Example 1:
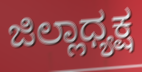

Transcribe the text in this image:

ಜಿಲ್ಲಾಧ್ಯಕ್ಷ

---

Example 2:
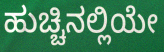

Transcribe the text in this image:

ಹುಚ್ಚಿನಲ್ಲಿಯೇ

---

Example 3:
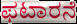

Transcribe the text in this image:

ಫಟಾರನೆ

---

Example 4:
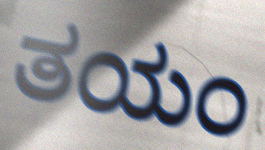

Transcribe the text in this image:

ತಯಂ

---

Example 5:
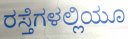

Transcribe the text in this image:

ರಸ್ತೆಗಳಲ್ಲಿಯೂ